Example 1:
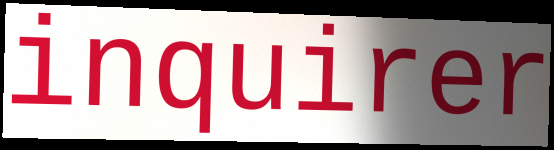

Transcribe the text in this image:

inquirer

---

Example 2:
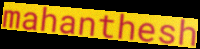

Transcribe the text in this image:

mahanthesh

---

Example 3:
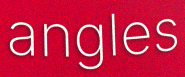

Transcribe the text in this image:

angles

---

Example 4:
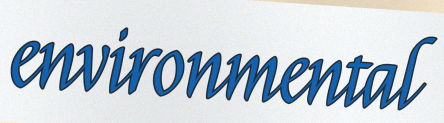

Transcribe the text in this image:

environmental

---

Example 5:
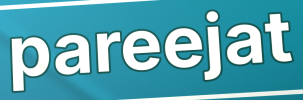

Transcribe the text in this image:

pareejat